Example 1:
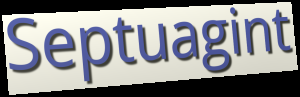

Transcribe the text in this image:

Septuagint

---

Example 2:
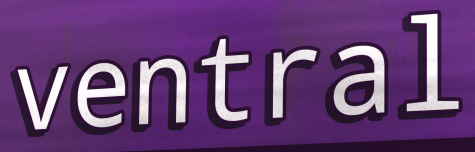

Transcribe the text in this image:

ventral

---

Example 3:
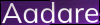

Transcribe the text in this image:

Aadare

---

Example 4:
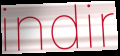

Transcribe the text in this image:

indir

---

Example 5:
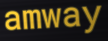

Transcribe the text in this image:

amway